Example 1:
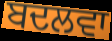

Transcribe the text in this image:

ਬਦਲਵਾ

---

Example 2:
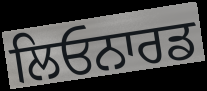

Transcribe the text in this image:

ਲਿਓਨਾਰਡ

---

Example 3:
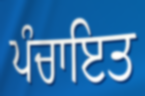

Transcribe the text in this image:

ਪੰਚਾਇਤ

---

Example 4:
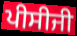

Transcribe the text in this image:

ਪੀਸੀਜੀ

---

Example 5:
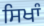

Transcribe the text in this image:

ਸਿਖਾੰ